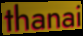
thanai